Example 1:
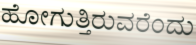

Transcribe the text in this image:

ಹೋಗುತ್ತಿರುವರೆಂದು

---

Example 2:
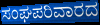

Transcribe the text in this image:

ಸಂಘಪರಿವಾರದ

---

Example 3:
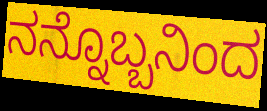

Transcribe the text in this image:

ನನ್ನೊಬ್ಬನಿಂದ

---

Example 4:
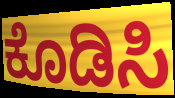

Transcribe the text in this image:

ಕೊಡಿಸಿ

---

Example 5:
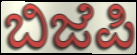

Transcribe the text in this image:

ಬಿಜೆಪಿ